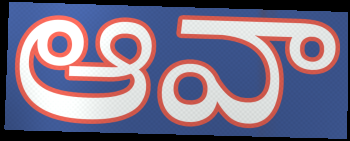
ఆవా